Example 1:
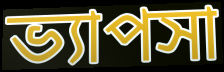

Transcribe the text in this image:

ভ্যাপসা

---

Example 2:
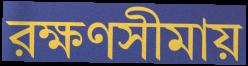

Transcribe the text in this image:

রক্ষণসীমায়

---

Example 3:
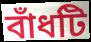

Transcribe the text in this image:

বাঁধটি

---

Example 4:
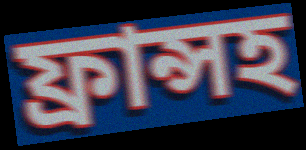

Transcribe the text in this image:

ফ্রান্সহ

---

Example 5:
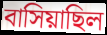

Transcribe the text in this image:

বাসিয়াছিল